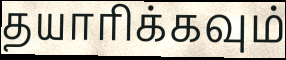
தயாரிக்கவும்